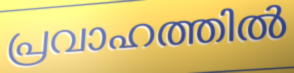
പ്രവാഹത്തിൽ